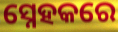
ସ୍ନେହକରେ